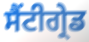
ਸੈਂਟੀਗ੍ਰੇਡ